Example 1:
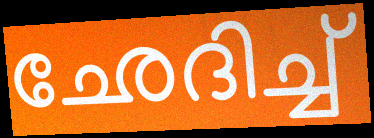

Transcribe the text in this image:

ഛേദിച്ച്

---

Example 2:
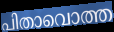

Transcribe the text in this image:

പിതാവൊത്ത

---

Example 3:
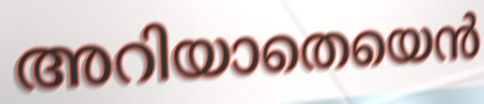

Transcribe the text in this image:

അറിയാതെയെൻ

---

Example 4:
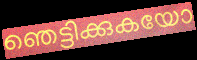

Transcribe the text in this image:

ഞെട്ടിക്കുകയോ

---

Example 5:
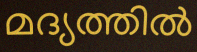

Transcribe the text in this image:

മദ്യത്തിൽ